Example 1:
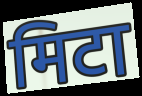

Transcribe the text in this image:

मिटा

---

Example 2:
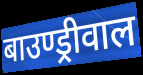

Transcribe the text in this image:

बाउण्ड्रीवाल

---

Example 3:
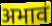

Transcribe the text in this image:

अभावं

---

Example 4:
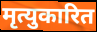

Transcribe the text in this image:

मृत्युकारित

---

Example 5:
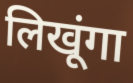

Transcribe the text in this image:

लिखूंगा